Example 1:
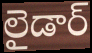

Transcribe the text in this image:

లైడార్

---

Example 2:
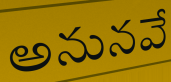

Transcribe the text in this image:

అనునవే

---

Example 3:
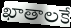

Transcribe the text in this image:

ఖాతాలకే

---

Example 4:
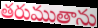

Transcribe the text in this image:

తరుముతాను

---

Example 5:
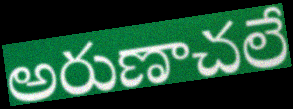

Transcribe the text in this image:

అరుణాచలే